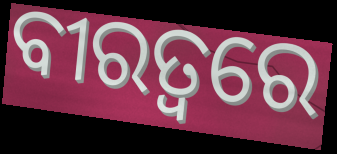
ବୀରତ୍ୱରେ